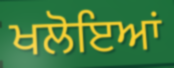
ਖਲੋਇਆਂ